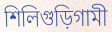
শিলিগুড়িগামী